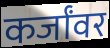
कर्जांवर